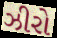
ઝીરો